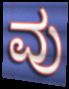
ವು